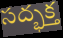
సద్భక్త